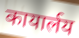
कायार्लय